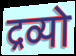
द्रव्यो